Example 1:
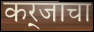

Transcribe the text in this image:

कर्जाचा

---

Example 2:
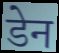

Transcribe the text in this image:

डेन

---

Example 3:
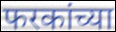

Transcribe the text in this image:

फरकांच्या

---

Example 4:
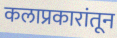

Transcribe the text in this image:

कलाप्रकारांतून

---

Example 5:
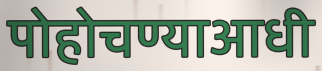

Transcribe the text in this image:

पोहोचण्याआधी